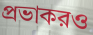
প্রভাকরও